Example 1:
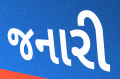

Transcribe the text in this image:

જનારી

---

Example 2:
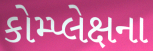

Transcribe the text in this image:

કોમ્પ્લેક્ષના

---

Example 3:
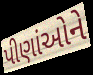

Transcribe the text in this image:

પીણાંઓને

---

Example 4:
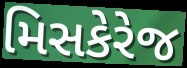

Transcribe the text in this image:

મિસકેરેજ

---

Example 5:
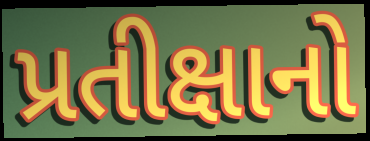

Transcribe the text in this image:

પ્રતીક્ષાનો